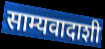
साम्यवादाशी